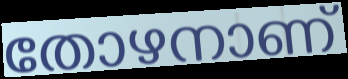
തോഴനാണ്